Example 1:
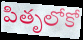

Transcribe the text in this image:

పితృలోకో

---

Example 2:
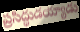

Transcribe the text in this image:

ప్రసిద్ధుడయ్యాడు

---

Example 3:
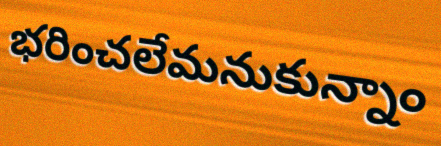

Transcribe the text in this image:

భరించలేమనుకున్నాం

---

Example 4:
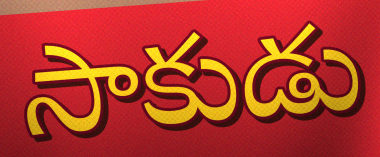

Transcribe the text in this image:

సాకుడు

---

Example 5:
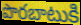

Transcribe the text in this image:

పొరబాటుకి